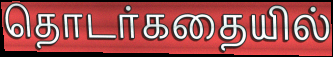
தொடர்கதையில்